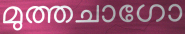
മുത്തചാഗോ